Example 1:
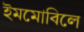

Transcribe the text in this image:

ইমমোবিলে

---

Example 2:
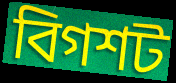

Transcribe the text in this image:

বিগশট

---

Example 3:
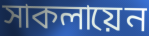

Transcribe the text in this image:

সাকলায়েন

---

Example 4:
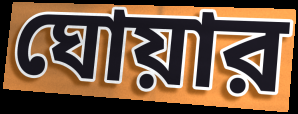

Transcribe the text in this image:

ঘোয়ার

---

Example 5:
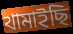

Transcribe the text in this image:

থামাইছি